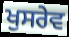
ਖੁਸਰੇਵ